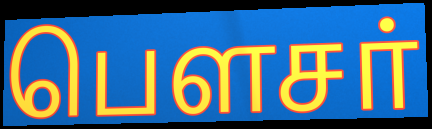
பௌசர்